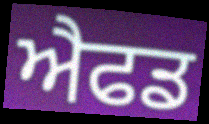
ਐਫਡ